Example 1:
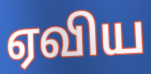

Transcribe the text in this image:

ஏவிய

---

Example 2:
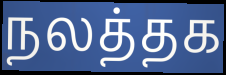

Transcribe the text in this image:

நலத்தக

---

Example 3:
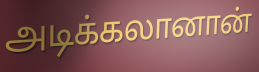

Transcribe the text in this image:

அடிக்கலானான்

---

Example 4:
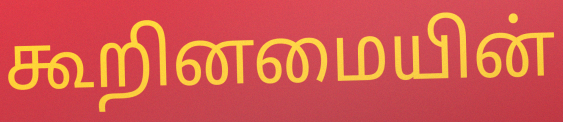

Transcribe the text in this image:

கூறினமையின்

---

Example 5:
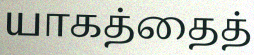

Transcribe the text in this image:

யாகத்தைத்